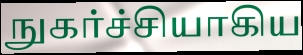
நுகர்ச்சியாகிய